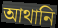
আথানি